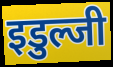
इडुल्जी